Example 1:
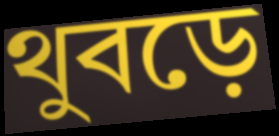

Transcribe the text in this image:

থুবড়ে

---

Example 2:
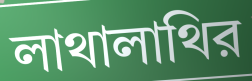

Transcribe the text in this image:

লাথালাথির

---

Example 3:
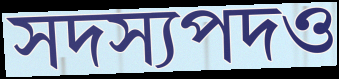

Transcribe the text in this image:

সদস্যপদও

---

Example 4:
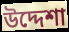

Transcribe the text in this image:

উদ্দেশা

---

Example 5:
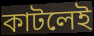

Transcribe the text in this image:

কাটলেই